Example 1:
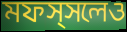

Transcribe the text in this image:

মফস্‌সলেও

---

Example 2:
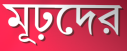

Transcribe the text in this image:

মূঢ়দের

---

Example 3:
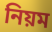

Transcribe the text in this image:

নিয়ম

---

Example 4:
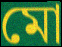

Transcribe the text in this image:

মো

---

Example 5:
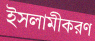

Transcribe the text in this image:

ইসলামীকরণ